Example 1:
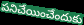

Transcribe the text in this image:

పనిచేయించేందుకు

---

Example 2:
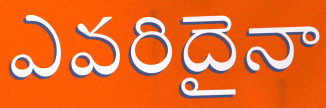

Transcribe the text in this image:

ఎవరిదైనా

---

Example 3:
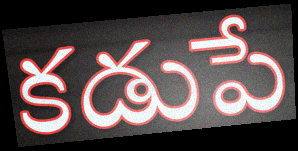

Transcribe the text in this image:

కడుపే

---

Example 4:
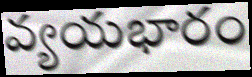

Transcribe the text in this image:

వ్యయభారం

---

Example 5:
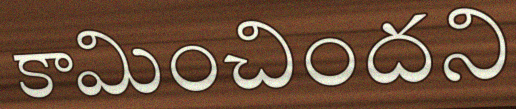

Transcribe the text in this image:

కామించిందని